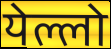
येल्लो